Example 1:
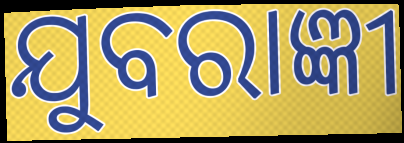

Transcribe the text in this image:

ଯୁବରାଜ୍ଞୀ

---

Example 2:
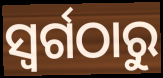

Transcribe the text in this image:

ସ୍ଵର୍ଗଠାରୁ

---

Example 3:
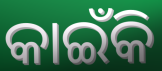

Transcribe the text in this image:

କାଇଁକି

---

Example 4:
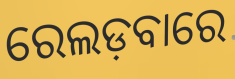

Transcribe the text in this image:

ରେଲଡ଼ବାରେ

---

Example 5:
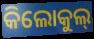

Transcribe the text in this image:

କିଲୋକୁଲ୍